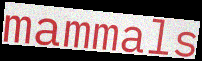
mammals